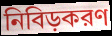
নিবিড়করণ